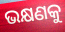
ଭକ୍ଷଣକୁ